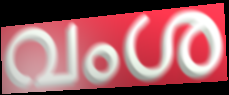
വംശ